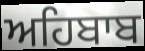
ਅਹਿਬਾਬ